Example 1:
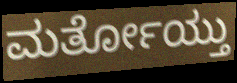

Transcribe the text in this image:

ಮರ್ತೋಯ್ತು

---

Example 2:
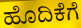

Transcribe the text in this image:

ಹೊದಿಕೆಗೆ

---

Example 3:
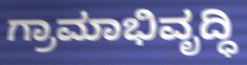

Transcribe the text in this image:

ಗ್ರಾಮಾಭಿವೃದ್ಧಿ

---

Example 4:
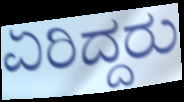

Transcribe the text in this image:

ಏರಿದ್ದರು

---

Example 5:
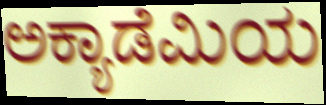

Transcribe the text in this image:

ಅಕ್ಯಾಡೆಮಿಯ